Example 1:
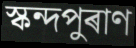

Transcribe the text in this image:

স্কন্দপুৰাণ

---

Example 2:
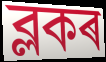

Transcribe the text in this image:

ব্লকৰ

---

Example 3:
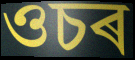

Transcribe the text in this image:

ওচৰ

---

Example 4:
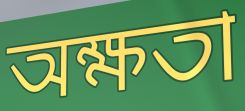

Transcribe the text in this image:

অক্ষতা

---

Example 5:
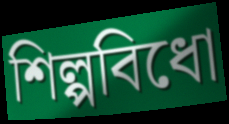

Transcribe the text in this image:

শিল্পবিধো